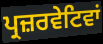
ਪ੍ਰਜ਼ਰਵੇਟਿਵਾਂ